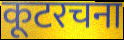
कूटरचना